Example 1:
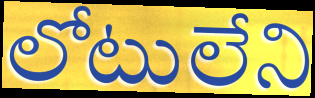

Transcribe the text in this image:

లోటులేని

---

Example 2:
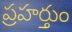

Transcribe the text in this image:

ప్రహర్తుం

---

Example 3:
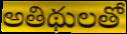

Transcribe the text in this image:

అతిథులతో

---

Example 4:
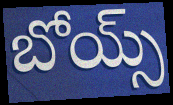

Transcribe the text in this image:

బోయ్స్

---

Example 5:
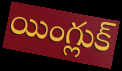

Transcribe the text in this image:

యింగ్లుక్